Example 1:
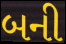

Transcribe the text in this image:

બની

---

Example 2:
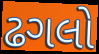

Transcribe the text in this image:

ઢગલો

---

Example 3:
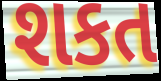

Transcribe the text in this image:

શકત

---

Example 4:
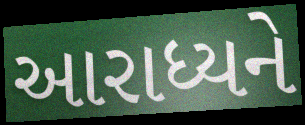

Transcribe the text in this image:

આરાધ્યને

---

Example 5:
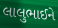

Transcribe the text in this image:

લાલુભાઈને